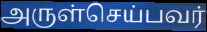
அருள்செய்பவர்